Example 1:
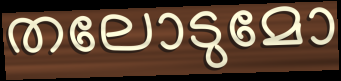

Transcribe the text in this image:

തലോടുമോ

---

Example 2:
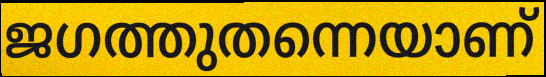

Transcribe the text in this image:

ജഗത്തുതന്നെയാണ്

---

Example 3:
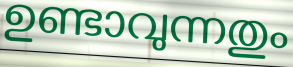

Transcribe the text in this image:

ഉണ്ടാവുന്നതും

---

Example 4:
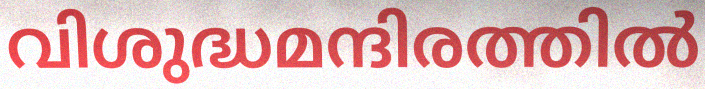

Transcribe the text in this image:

വിശുദ്ധമന്ദിരത്തിൽ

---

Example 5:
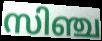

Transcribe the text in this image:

സിഞ്ച